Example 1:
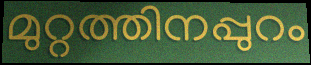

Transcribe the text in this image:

മുറ്റത്തിനപ്പുറം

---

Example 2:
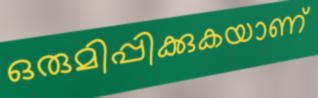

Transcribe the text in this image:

ഒരുമിപ്പിക്കുകയാണ്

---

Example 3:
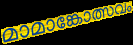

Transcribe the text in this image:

മാമാങ്കോത്സവം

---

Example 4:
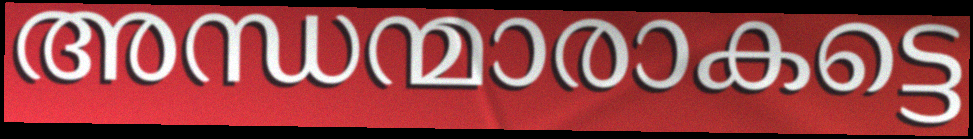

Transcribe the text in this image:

അന്ധന്മാരാകട്ടെ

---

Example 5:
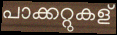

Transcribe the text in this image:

പാക്കറ്റുകള്